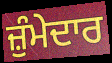
ਜ਼ੁੰਮੇਦਾਰ